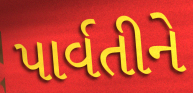
પાર્વતીને